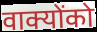
वाक्योंको